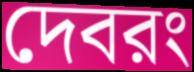
দেবরং